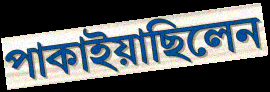
পাকাইয়াছিলেন